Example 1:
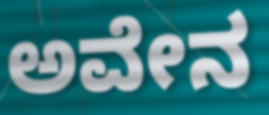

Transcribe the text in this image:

ಅವೇನ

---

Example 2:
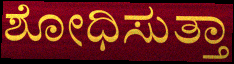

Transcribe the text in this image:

ಶೋಧಿಸುತ್ತಾ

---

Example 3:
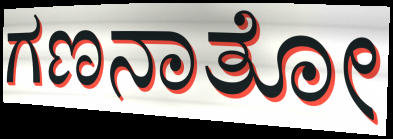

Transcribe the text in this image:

ಗಣನಾತೋ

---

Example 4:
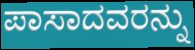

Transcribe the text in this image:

ಪಾಸಾದವರನ್ನು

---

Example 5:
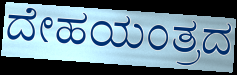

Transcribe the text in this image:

ದೇಹಯಂತ್ರದ